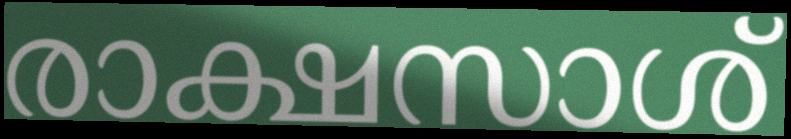
രാക്ഷസാശ്